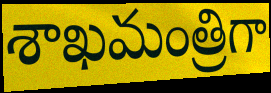
శాఖమంత్రిగా